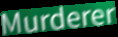
Murderer